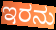
ಇರನು